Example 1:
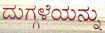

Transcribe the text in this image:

ದುಗ್ಗಳೆಯನ್ನು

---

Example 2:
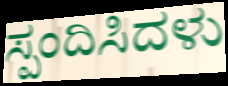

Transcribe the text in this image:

ಸ್ಪಂದಿಸಿದಳು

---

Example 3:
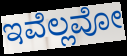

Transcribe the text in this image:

ಇವೆಲ್ಲವೋ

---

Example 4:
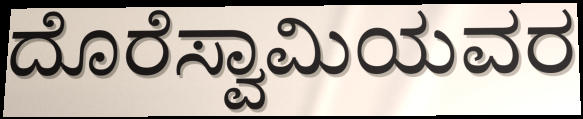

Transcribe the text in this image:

ದೊರೆಸ್ವಾಮಿಯವರ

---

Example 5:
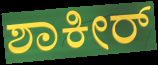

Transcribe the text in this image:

ಶಾಕೀರ್